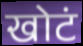
खोटं